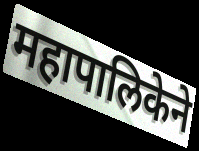
महापालिकेने